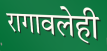
रागावलेही